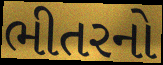
ભીતરનો